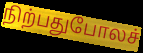
நிற்பதுபோலச்